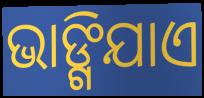
ଭାଙ୍ଗିଯାଏ